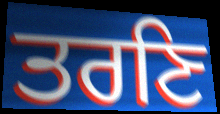
ਤਰਣਿ